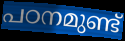
പഠനമുണ്ട്